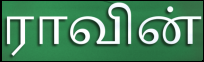
ராவின்